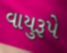
વાયુરૂપે